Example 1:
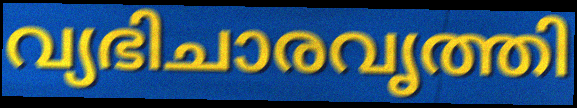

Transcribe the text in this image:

വ്യഭിചാരവൃത്തി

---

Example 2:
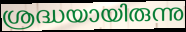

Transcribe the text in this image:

ശ്രദ്ധയായിരുന്നു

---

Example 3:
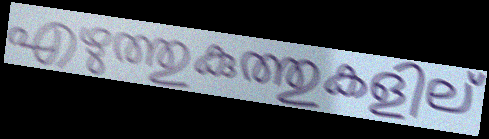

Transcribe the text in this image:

എഴുത്തുകുത്തുകളില്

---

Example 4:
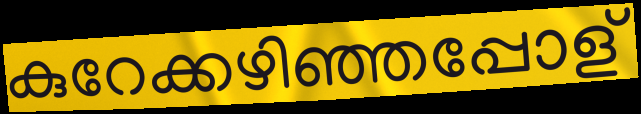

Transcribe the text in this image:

കുറേക്കഴിഞ്ഞപ്പോള്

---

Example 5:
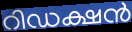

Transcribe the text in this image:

റിഡക്ഷൻ